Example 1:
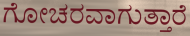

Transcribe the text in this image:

ಗೋಚರವಾಗುತ್ತಾರೆ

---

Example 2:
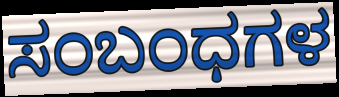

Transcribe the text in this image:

ಸಂಬಂಧಗಳ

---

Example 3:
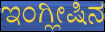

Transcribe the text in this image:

ಇಂಗ್ಲೀಷಿನ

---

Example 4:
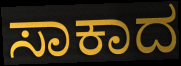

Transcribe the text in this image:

ಸಾಕಾದ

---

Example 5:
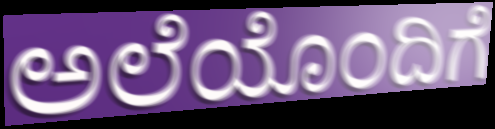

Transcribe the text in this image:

ಅಲೆಯೊಂದಿಗೆ